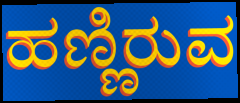
ಹಣ್ಣಿರುವ